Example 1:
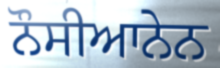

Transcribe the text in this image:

ਨੌਸੀਆਨੇਨ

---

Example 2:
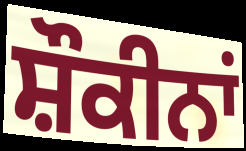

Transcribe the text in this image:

ਸ਼ੌਕੀਨਾਂ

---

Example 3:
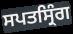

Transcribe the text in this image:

ਸਪਤਸ੍ਰਿੰਗ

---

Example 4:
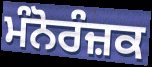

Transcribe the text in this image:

ਮੰਨੋਰੰਜ਼ਕ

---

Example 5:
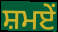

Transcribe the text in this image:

ਸ਼ਮਏਂ